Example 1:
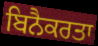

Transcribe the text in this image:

ਬਿਨੈਕਰਤਾ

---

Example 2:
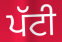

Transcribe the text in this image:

ਪੱਟੀ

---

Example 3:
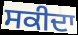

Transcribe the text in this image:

ਸਕੀਦਾ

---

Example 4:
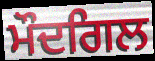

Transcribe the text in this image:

ਮੌਦਗਿਲ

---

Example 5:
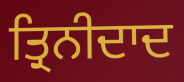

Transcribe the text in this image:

ਤ੍ਰਿਨੀਦਾਦ